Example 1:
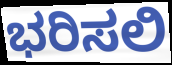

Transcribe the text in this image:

ಭರಿಸಲಿ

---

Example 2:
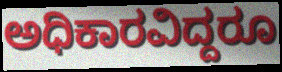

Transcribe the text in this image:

ಅಧಿಕಾರವಿದ್ದರೂ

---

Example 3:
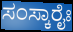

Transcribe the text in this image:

ಸಂಸ್ಕಾರೈಃ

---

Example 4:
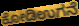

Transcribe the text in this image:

ಕೋಡಿಉಗನೆ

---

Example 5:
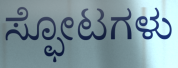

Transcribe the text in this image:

ಸ್ಫೋಟಗಳು